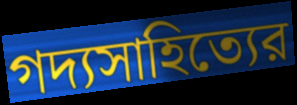
গদ্যসাহিত্যের